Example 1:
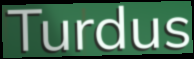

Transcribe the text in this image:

Turdus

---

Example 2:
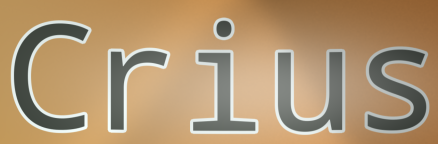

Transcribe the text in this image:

Crius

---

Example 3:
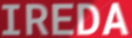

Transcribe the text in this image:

IREDA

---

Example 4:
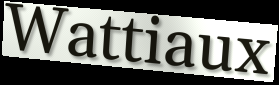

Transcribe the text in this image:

Wattiaux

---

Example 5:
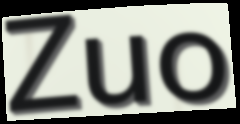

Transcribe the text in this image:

Zuo